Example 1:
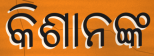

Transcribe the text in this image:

କିଶାନଙ୍କ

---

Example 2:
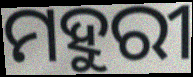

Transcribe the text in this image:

ମହୁରୀ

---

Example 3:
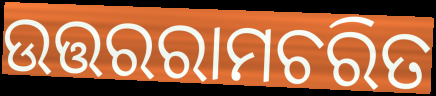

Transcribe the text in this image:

ଉତ୍ତରରାମଚରିତ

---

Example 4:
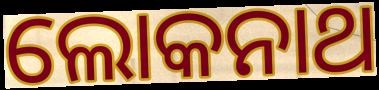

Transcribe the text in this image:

ଲୋକନାଥ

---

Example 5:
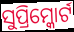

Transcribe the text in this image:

ସୁପ୍ରିମ୍କୋର୍ଟ